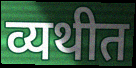
व्यथीत